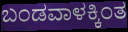
ಬಂಡವಾಳಕ್ಕಿಂತ